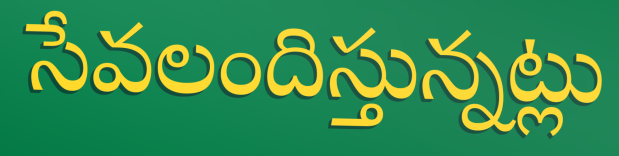
సేవలందిస్తున్నట్లు